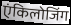
एंकिलोजिंग